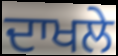
ਦਾਖਲੇ